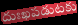
దుఃఖపడుటకు